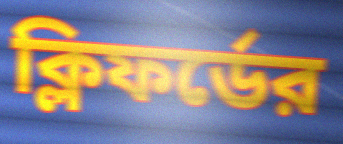
ক্লিফর্ডের